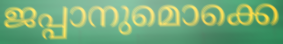
ജപ്പാനുമൊക്കെ